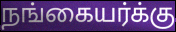
நங்கையர்க்கு